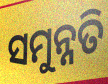
ସମୁନ୍ନତି